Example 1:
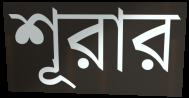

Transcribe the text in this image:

শূরার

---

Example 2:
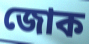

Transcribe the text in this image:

জোক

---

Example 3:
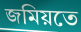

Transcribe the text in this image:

জমিয়তে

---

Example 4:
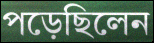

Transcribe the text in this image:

পড়েছিলেন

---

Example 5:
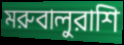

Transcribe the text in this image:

মরুবালুরাশি